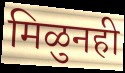
मिळुनही